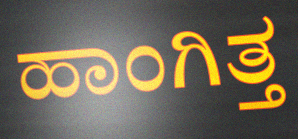
ಹಾಂಗಿತ್ತ